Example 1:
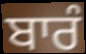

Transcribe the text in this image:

ਬਾਰੰ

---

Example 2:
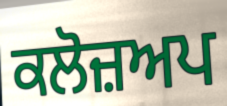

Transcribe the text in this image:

ਕਲੋਜ਼ਅਪ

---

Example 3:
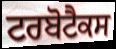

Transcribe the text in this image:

ਟਰਬੋਟੈਕਸ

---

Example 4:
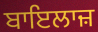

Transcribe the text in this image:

ਬਾਇਲਾਜ਼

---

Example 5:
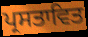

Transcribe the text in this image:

ਪ੍ਰਸਤਾਵਿਤ